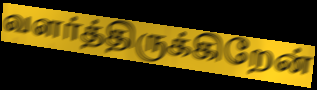
வளர்த்திருக்கிறேன்